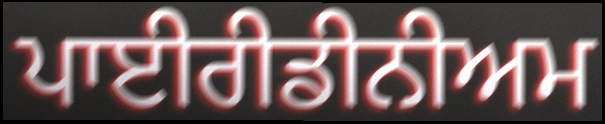
ਪਾਈਰੀਡੀਨੀਅਮ